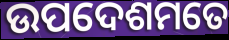
ଉପଦେଶମତେ